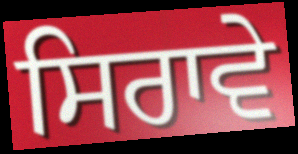
ਸਿਰਾਵੇ